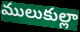
ములుకుల్లా